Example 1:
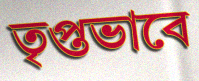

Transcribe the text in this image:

তৃপ্তভাবে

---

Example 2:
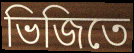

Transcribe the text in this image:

ভিজিতে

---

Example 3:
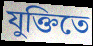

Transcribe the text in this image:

যুক্তিতে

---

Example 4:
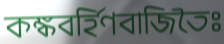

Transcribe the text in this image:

কঙ্কবর্হিণবাজিতৈঃ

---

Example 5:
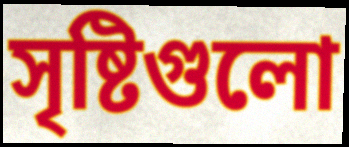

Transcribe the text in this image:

সৃষ্টিগুলো